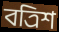
বত্রিশ